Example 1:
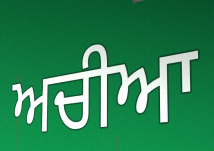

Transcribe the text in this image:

ਅਚੀਆ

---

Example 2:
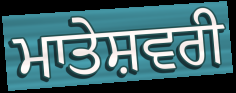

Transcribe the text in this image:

ਮਾਤੇਸ਼ਵਰੀ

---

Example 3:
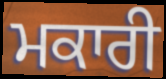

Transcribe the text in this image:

ਮਕਾਰੀ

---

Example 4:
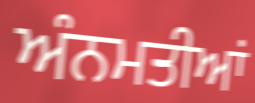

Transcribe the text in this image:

ਅੰਨਮਤੀਆਂ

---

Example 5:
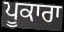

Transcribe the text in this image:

ਪੂਕਾਰਾ